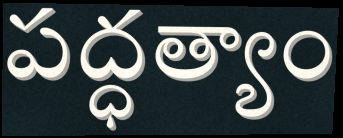
పద్ధత్యాం